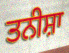
ਤਨੀਸ਼ਾ